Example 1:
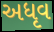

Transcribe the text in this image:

અધૃવ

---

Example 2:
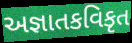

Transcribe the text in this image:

અજ્ઞાતકવિકૃત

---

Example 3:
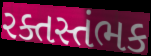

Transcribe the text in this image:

રક્તસ્તંભક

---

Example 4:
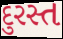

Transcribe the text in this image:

દુરસ્ત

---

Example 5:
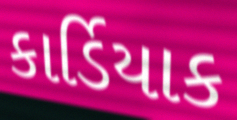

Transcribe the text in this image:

કાર્ડિયાક